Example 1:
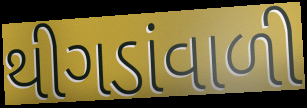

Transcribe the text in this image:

થીગડાંવાળી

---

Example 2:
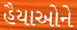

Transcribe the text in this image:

હૈયાઓને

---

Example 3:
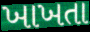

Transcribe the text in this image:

ખાખતા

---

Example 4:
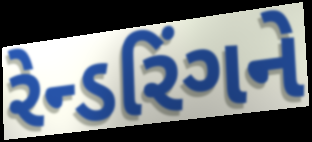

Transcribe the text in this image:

રેન્ડરિંગને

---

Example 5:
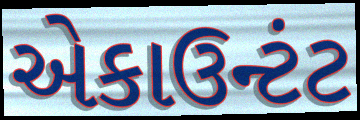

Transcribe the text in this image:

એકાઉન્ટંટ